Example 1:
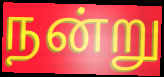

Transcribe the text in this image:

நன்று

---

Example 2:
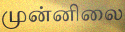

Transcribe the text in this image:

முன்னிலை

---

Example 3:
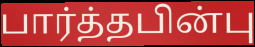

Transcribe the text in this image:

பார்த்தபின்பு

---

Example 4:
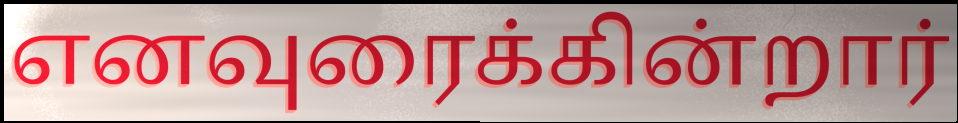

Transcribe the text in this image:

எனவுரைக்கின்றார்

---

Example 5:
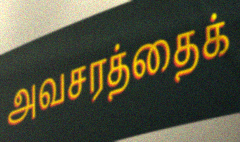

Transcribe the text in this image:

அவசரத்தைக்